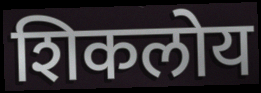
शिकलोय